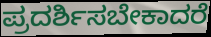
ಪ್ರದರ್ಶಿಸಬೇಕಾದರೆ